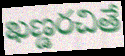
ఖణ్డరచితే